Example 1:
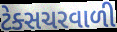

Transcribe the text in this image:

ટેક્સચરવાળી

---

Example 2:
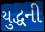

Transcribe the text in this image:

યુદ્ધની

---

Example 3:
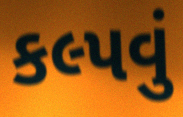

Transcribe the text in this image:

કલ્પવું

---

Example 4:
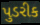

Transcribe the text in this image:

પુડરીક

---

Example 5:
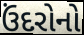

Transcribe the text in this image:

ઉંદરોનો